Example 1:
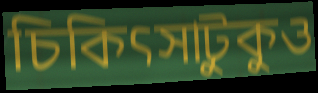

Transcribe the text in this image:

চিকিৎসাটুকুও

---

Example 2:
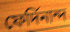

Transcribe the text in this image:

ফের্দিনান্দ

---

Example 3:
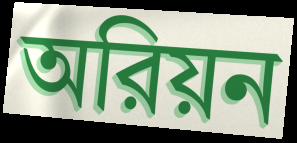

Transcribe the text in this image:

অরিয়ন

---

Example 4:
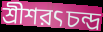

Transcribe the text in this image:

শ্রীশরৎচন্দ্র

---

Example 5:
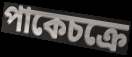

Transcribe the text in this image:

পাকেচক্রে